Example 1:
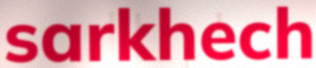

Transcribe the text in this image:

sarkhech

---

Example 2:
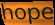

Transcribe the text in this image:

hope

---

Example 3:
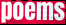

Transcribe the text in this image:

poems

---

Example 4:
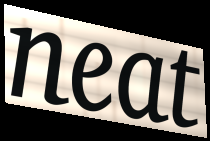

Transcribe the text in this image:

neat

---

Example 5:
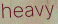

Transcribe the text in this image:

heavy